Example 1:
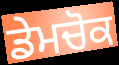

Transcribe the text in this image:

ਡੇਮਚੋਕ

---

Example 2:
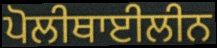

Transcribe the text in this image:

ਪੋਲੀਥਾਈਲੀਨ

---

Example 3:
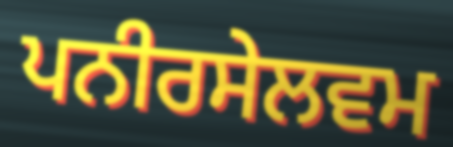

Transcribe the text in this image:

ਪਨੀਰਸੇਲਵਮ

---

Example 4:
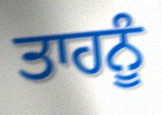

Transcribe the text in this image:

ਤਾਹਨੂੰ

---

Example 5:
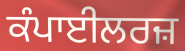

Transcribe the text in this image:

ਕੰਪਾਈਲਰਜ਼